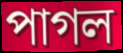
পাগল